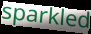
sparkled